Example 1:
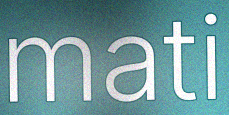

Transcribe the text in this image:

mati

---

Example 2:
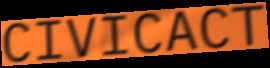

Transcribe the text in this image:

CIVICACT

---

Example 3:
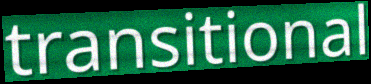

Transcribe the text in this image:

transitional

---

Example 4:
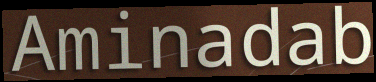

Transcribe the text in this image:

Aminadab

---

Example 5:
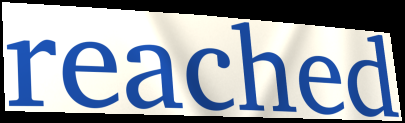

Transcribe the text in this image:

reached